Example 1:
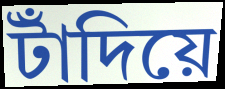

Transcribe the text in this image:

টাঁদিয়ে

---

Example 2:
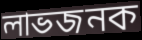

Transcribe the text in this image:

লাভজনক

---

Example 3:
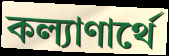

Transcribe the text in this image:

কল্যাণার্থে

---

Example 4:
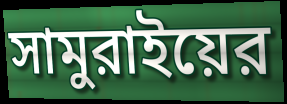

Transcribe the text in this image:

সামুরাইয়ের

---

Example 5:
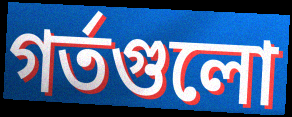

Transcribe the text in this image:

গর্তগুলো